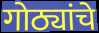
गोठ्यांचे